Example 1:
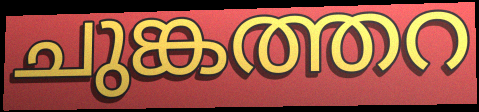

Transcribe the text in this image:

ചുങ്കത്തറ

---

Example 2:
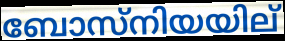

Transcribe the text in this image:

ബോസ്നിയയില്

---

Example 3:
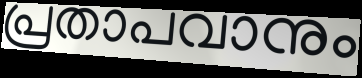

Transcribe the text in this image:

പ്രതാപവാനും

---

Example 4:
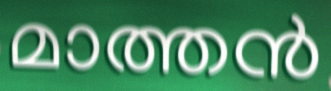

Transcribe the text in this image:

മാത്തൻ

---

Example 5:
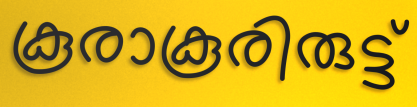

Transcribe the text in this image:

കൂരാകൂരിരുട്ട്